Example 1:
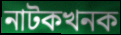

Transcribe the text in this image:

নাটকখনক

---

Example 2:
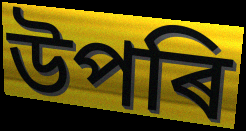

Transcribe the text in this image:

উপৰি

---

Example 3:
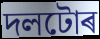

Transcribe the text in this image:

দলটোৰ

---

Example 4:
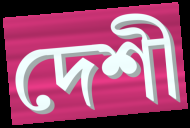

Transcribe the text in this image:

দেশী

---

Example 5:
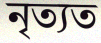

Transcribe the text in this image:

নৃত্যত